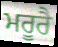
ਮਰੂਰੈ